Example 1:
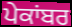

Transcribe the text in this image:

ਪੇਕਾਂਬਰ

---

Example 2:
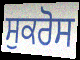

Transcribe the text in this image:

ਸੁਕਰੋਸ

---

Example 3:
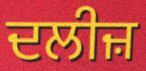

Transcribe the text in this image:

ਦਲੀਜ਼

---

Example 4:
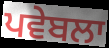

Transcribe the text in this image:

ਪਵੇਬਲਾ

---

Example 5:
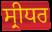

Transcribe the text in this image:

ਸ੍ਰੀਧਰ